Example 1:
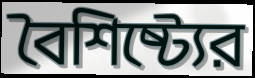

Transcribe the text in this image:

বৈশিষ্ট্যের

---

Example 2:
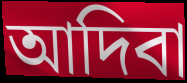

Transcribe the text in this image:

আদিবা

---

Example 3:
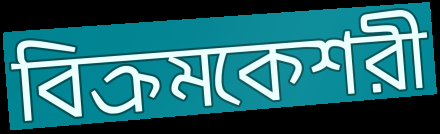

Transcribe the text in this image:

বিক্রমকেশরী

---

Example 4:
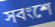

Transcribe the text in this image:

সবংশে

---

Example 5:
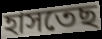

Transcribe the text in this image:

হাসতেছ